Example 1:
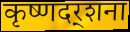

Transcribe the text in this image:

कृष्णदर्शना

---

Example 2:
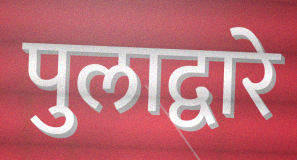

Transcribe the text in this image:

पुलाद्वारे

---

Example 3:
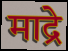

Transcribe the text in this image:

माद्रे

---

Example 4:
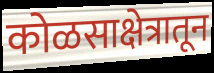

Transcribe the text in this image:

कोळसाक्षेत्रातून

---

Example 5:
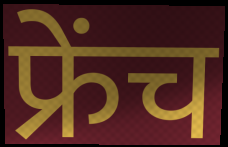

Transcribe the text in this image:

फ्रेंच